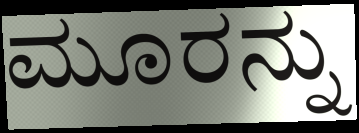
ಮೂರನ್ನು